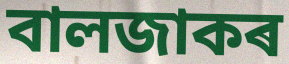
বালজাকৰ